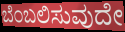
ಬೆಂಬಲಿಸುವುದೇ